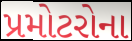
પ્રમોટરોના